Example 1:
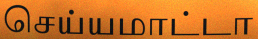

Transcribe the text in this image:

செய்யமாட்டா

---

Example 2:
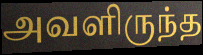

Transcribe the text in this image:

அவளிருந்த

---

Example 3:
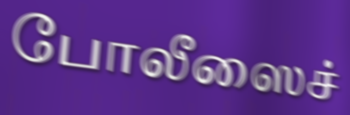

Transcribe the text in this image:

போலீஸைச்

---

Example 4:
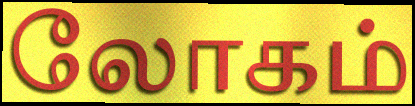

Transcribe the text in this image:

லோகம்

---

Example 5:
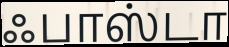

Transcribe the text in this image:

ஃபாஸ்டா